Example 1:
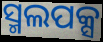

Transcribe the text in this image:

ସ୍ମଲପକ୍ସ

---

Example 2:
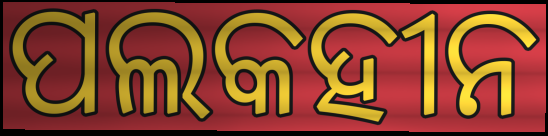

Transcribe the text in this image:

ପଲକହୀନ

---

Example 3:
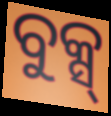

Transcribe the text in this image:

ବୁକ୍ସ୍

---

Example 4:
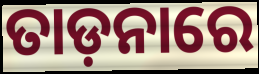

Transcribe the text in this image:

ତାଡ଼ନାରେ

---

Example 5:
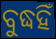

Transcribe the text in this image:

ବୁଦ୍ଧହିଁ